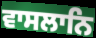
ਵਾਸਲਾਨਿ